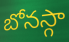
బోనస్గా